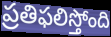
ప్రతిఫలిస్తోంది